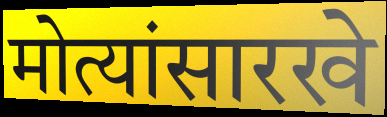
मोत्यांसारखे